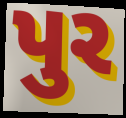
પુર